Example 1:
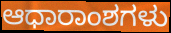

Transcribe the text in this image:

ಆಧಾರಾಂಶಗಳು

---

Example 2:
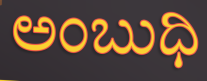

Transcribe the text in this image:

ಅಂಬುಧಿ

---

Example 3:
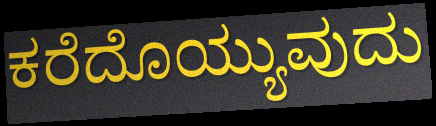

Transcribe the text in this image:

ಕರೆದೊಯ್ಯುವುದು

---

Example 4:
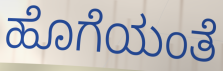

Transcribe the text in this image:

ಹೊಗೆಯಂತೆ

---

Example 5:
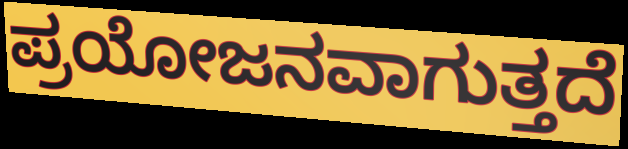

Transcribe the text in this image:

ಪ್ರಯೋಜನವಾಗುತ್ತದೆ